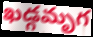
ఖడ్గమృగ